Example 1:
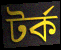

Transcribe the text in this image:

টর্ক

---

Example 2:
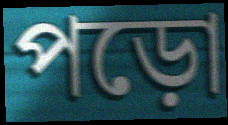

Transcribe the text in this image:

পড়ো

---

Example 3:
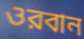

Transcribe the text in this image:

ওরবান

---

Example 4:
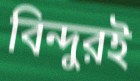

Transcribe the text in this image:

বিন্দুরই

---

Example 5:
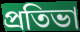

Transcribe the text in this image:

প্রতিভা